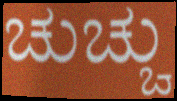
ಚುಚ್ಚು